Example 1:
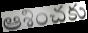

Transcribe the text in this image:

ఆశించకు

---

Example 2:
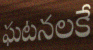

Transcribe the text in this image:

ఘటనలకే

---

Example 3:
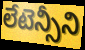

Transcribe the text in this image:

లేటెన్సీని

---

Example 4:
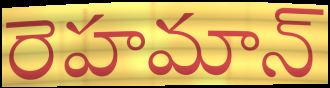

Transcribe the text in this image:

రెహమాన్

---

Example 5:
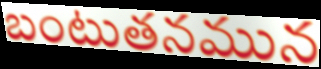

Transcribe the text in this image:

బంటుతనమున